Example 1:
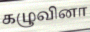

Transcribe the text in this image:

கழுவினா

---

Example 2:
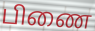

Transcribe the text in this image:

பிணை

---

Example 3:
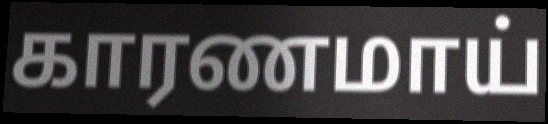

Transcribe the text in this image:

காரணமாய்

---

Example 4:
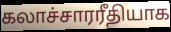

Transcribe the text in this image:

கலாச்சாரரீதியாக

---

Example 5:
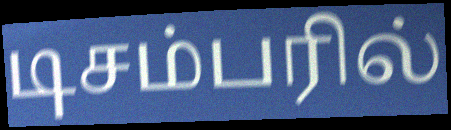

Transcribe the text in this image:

டிசம்பரில்